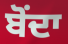
ਬੋੰਦਾ